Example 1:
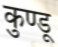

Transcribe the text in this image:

कुण्डू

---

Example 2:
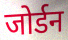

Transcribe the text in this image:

जोर्डन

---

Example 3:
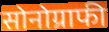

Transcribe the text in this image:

सोनोग्राफी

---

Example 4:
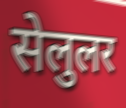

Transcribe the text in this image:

सेलुलर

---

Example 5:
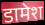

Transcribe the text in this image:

डामेश